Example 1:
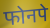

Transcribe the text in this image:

फोनपे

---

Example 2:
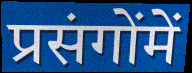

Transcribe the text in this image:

प्रसंगोंमें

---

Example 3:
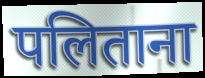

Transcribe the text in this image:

पलिताना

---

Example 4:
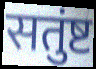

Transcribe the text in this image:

सतुंष्ट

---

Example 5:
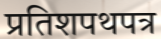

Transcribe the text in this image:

प्रतिशपथपत्र